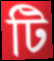
টি